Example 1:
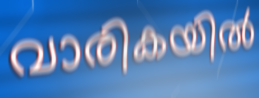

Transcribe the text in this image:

വാരികയിൽ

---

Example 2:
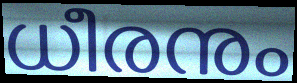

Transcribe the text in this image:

ധീരനും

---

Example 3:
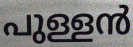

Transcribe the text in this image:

പുള്ളൻ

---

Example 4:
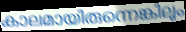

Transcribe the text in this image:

കാലമായിരുന്നെങ്കിലും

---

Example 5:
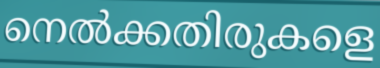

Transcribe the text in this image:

നെൽക്കതിരുകളെ